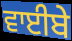
ਵਾਈਬੇ